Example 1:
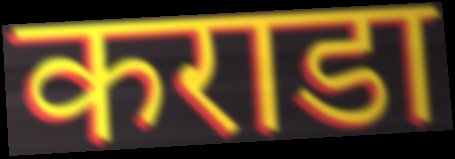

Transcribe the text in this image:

कराडा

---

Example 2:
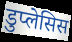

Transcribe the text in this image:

डुप्लेसिस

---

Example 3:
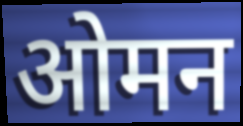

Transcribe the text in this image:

ओमन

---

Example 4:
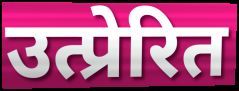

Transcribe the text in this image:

उत्प्रेरित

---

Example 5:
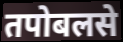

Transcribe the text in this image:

तपोबलसे